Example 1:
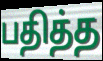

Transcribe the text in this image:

பதித்த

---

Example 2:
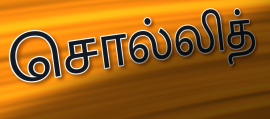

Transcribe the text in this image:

சொல்லித்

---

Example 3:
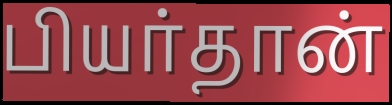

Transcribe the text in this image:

பியர்தான்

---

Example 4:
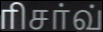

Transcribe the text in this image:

ரிசர்வ்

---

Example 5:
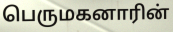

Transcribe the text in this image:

பெருமகனாரின்